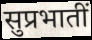
सुप्रभातीं